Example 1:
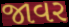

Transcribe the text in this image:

જાવર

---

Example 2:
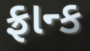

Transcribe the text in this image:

ફ્રાન્ક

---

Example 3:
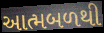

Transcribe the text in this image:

આત્મબળથી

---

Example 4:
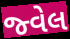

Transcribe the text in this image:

જ્વેલ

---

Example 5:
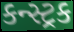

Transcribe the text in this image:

કન્સ્ટ્રક